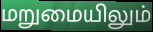
மறுமையிலும்